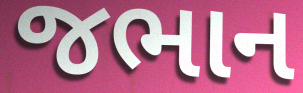
જભાન